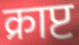
क्राप्ट